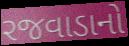
રજવાડાનો